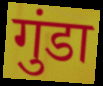
गुंडा